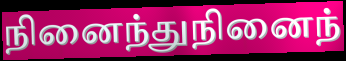
நினைந்துநினைந்